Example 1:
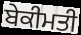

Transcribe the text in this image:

ਬੇਕੀਮਤੀ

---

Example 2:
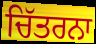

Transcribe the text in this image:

ਚਿੱਤਰਨਾ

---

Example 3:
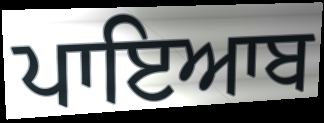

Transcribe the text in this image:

ਪਾਇਆਬ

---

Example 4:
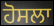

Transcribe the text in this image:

ਹੋਸਲਾ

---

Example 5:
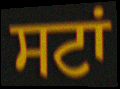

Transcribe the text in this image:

ਸਟਾਂ